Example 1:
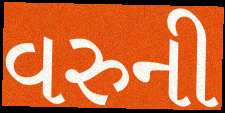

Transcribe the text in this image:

વરુની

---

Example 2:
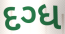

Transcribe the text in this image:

દગ્ધ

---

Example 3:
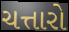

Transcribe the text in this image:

ચત્તારો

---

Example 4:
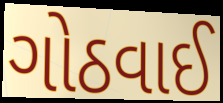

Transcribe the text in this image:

ગોઠવાઈ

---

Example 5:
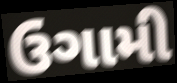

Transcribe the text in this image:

ઉગામી